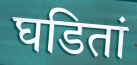
घडितां